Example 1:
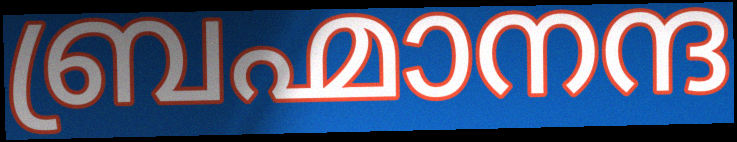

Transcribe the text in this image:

ബ്രഹ്മാനന്ദ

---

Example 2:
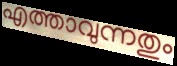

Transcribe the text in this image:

എത്താവുന്നതും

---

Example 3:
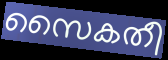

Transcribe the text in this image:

സൈകതീ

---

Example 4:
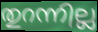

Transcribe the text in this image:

തുറന്നില്ല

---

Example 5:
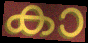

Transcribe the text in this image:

കാ